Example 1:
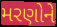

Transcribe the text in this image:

મરણોને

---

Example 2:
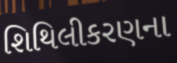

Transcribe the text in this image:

શિથિલીકરણના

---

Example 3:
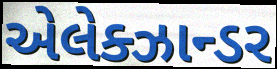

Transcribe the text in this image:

એલેક્ઝાન્ડર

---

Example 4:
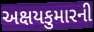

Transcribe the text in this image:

અક્ષયકુમારની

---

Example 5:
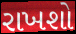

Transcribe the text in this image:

રાખશો